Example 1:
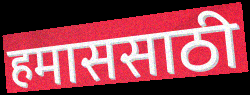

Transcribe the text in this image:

हमाससाठी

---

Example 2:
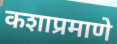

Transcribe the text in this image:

कशाप्रमाणे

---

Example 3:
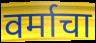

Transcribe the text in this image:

वर्माचा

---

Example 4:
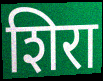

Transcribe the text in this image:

शिरा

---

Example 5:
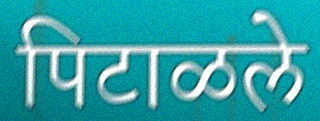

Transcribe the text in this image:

पिटाळले